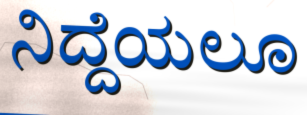
ನಿದ್ದೆಯಲೂ